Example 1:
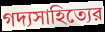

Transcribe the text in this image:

গদ্যসাহিত্যের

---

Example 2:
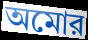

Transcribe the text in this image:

অমোর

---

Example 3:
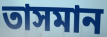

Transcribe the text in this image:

তাসমান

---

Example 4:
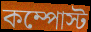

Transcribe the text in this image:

কম্পোস্ট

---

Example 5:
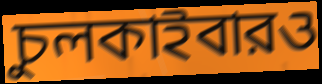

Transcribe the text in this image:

চুলকাইবারও